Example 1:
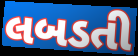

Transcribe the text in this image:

લબડતી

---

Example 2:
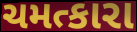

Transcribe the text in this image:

ચમત્કારા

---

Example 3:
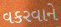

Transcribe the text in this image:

વકરવાને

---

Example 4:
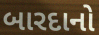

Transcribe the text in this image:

બારદાનો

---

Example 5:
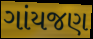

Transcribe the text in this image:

ગાંયજણ